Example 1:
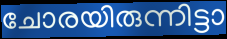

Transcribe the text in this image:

ചോരയിരുന്നിട്ടാ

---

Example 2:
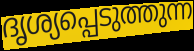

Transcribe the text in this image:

ദൃശ്യപ്പെടുത്തുന്ന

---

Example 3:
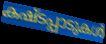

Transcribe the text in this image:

കഷ്ടപ്പാടുകൾ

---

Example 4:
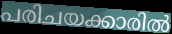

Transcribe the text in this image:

പരിചയക്കാരിൽ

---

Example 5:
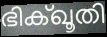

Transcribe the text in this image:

ഭിക്ഖൂതി